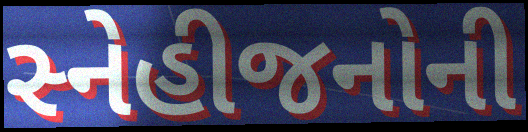
સ્નેહીજનોની